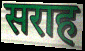
सराह